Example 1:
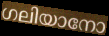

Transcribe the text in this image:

ഗലിയാനോ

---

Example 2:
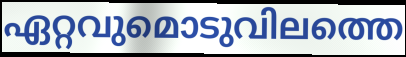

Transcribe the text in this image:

ഏറ്റവുമൊടുവിലത്തെ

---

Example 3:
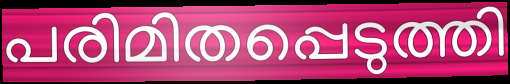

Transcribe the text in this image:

പരിമിതപ്പെടുത്തി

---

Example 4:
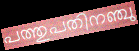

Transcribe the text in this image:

പത്തുപതിനഞ്ചു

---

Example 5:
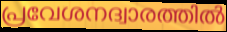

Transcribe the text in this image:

പ്രവേശനദ്വാരത്തിൽ